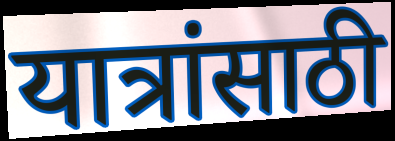
यात्रांसाठी